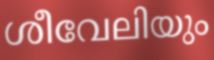
ശീവേലിയും